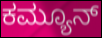
ಕಮ್ಯೂನ್